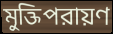
মুক্তিপরায়ণ